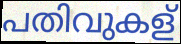
പതിവുകള്